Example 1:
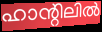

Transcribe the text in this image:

ഹാന്റിലിൽ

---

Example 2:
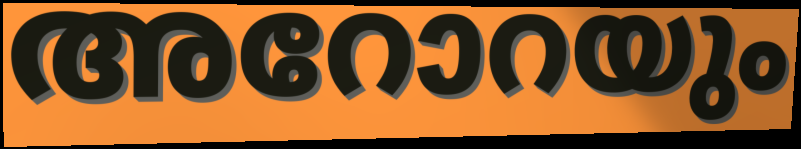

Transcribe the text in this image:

അറോറയും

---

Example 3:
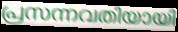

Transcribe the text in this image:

പ്രസന്നവതിയായി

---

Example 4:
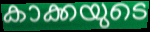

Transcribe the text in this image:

കാക്കയുടെ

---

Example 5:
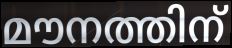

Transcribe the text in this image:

മൗനത്തിന്